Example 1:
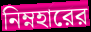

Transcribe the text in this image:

নিম্নহারের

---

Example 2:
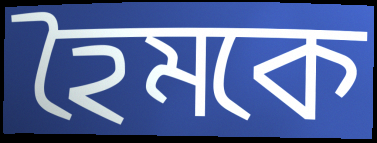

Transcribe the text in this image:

হৈমকে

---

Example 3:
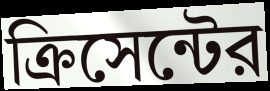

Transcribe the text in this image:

ক্রিসেন্টের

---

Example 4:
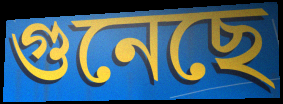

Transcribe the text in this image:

গুনেছে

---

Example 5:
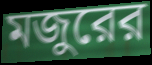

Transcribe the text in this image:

মজুরের